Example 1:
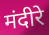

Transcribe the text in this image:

मंदीरे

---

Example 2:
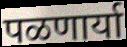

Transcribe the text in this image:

पळणार्या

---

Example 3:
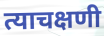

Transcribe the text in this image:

त्याचक्षणी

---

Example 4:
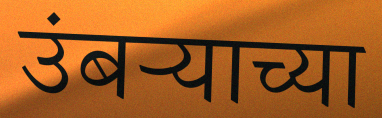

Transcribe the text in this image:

उंबऱ्याच्या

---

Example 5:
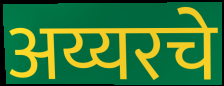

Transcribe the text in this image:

अय्यरचे